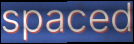
spaced